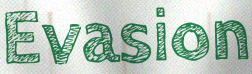
Evasion